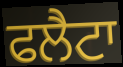
ਫਲੈਟਾ